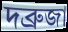
দব্রুজা